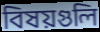
বিষয়গুলি